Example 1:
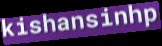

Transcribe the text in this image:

kishansinhp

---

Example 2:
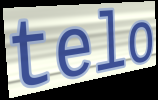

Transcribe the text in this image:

telo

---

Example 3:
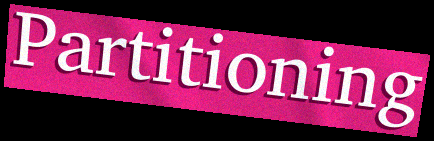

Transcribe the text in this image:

Partitioning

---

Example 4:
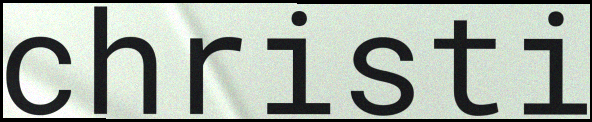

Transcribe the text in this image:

christi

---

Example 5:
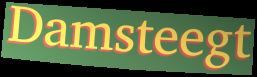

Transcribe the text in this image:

Damsteegt